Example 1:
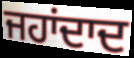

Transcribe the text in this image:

ਜਹਾਂਦਾਦ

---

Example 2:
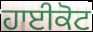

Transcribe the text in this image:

ਹਾਈਕੋਟ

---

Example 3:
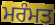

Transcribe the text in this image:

ਮਰੰਮਤ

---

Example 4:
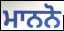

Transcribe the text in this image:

ਮਾਨਨੋ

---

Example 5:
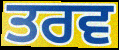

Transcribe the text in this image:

ਤਰਵ